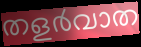
തളർവാത